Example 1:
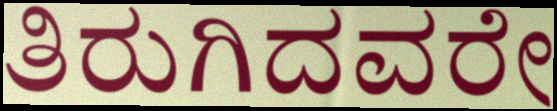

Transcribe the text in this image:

ತಿರುಗಿದವರೇ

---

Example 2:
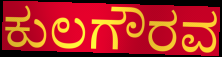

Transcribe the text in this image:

ಕುಲಗೌರವ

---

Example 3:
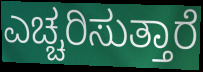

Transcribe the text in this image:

ಎಚ್ಚರಿಸುತ್ತಾರೆ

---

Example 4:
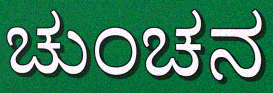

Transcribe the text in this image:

ಚುಂಚನ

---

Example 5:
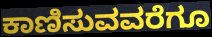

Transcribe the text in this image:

ಕಾಣಿಸುವವರೆಗೂ